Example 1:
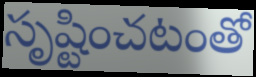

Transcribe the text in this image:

సృష్టించటంతో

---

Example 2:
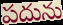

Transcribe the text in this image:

పదును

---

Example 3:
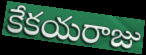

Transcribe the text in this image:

కేకయరాజు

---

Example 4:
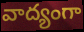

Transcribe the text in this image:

వాద్యంగా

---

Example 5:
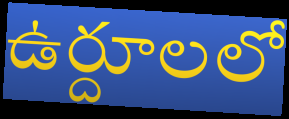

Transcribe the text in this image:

ఉర్దూలలో